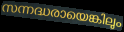
സന്നദ്ധരായെങ്കിലും